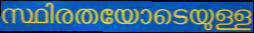
സ്ഥിരതയോടെയുള്ള